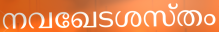
നവഖേടശസ്തം